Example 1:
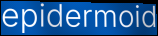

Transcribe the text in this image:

epidermoid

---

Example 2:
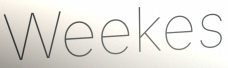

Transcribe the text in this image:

Weekes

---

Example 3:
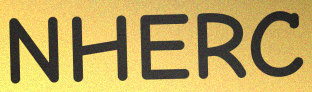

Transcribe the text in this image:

NHERC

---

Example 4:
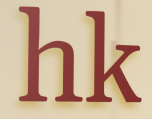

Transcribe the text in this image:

hk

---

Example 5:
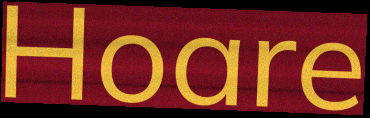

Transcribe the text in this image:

Hoare